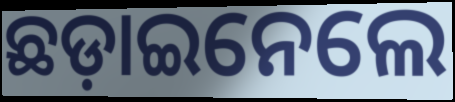
ଛଡ଼ାଇନେଲେ